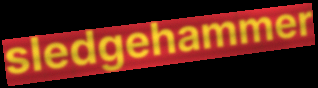
sledgehammer